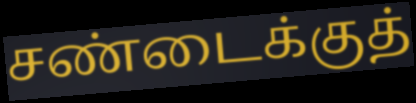
சண்டைக்குத்